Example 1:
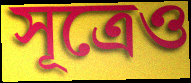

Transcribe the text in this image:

সূত্রেও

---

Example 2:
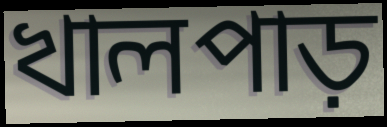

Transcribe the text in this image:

খালপাড়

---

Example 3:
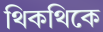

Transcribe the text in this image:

থিকথিকে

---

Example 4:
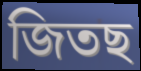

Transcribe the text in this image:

জিতছ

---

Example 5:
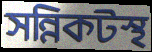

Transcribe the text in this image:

সন্নিকটস্থ